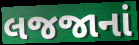
લજજાનાં